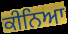
ਕੀਨਿਆ